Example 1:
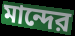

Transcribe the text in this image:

মান্দের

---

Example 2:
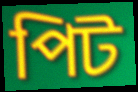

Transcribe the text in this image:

পিট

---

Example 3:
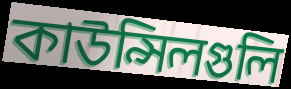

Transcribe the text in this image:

কাউন্সিলগুলি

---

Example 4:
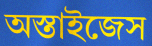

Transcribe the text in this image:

অস্তাইজেস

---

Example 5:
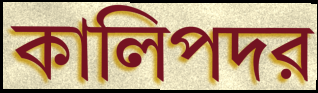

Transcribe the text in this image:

কালিপদর